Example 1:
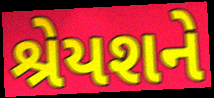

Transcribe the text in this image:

શ્રેયશને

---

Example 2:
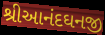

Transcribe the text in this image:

શ્રીઆનંદઘનજી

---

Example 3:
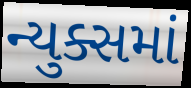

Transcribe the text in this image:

ન્યુક્સમાં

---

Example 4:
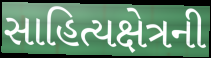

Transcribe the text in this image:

સાહિત્યક્ષેત્રની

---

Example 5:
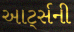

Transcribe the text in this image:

આર્ટ્સની